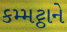
કમ્મટ્ઠાને